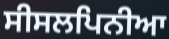
ਸੀਸਲਪਿਨੀਆ